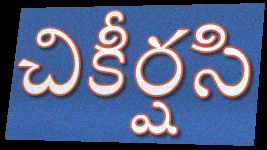
చికీర్షసి